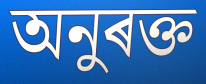
অনুৰক্ত